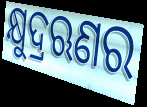
କ୍ଷୁଦ୍ରଋଣର